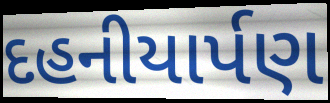
દહનીયાર્પણ